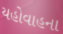
યહોવાહના